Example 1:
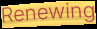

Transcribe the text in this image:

Renewing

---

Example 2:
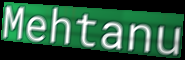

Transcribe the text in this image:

Mehtanu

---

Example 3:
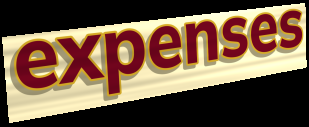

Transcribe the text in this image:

expenses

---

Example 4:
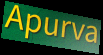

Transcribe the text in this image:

Apurva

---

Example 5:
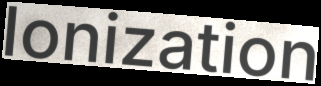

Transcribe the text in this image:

Ionization